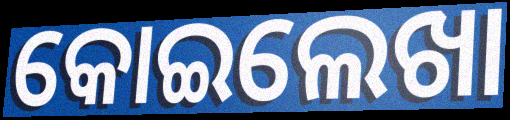
କୋଇଲେଖା